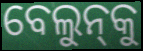
ବେଲୁନ୍‌କୁ